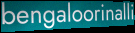
bengaloorinalli